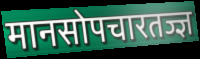
मानसोपचारतज्ज्ञ